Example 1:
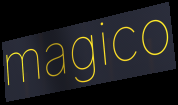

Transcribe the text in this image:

magico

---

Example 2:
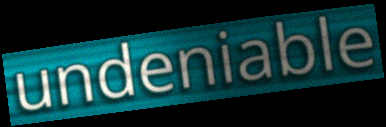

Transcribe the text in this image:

undeniable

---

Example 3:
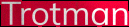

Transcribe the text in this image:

Trotman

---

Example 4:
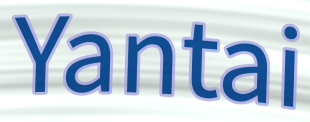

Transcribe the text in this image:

Yantai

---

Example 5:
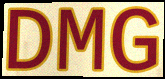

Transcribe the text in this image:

DMG